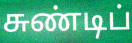
சுண்டிப்